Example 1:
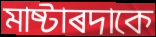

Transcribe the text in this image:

মাষ্টাৰদাকে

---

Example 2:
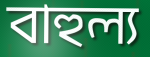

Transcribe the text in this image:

বাহুল্য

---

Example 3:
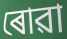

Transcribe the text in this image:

ৰোৱা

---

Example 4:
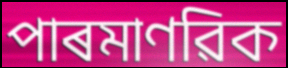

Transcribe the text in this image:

পাৰমাণৱিক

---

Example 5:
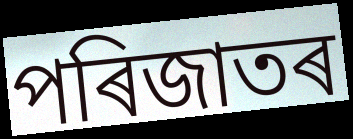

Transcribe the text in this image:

পৰিজাতৰ